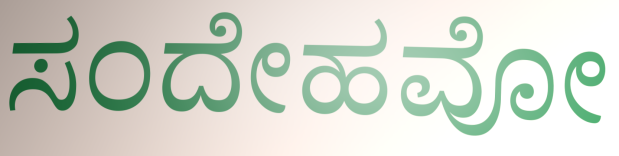
ಸಂದೇಹವೋ